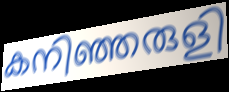
കനിഞ്ഞരുളി